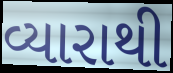
વ્યારાથી